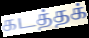
கடத்தக்